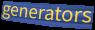
generators